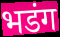
भडंग